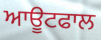
ਆਊਟਫਾਲ